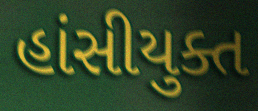
હાંસીયુક્ત